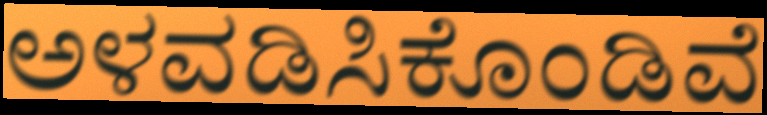
ಅಳವಡಿಸಿಕೊಂಡಿವೆ